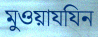
মুওয়াযযিন